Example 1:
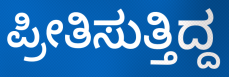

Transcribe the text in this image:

ಪ್ರೀತಿಸುತ್ತಿದ್ದ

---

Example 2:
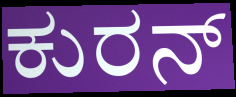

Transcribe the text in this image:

ಕುರನ್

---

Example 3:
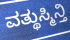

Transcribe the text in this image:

ವತ್ಥುಸ್ಮಿನ್ತಿ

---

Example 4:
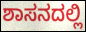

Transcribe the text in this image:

ಶಾಸನದಲ್ಲಿ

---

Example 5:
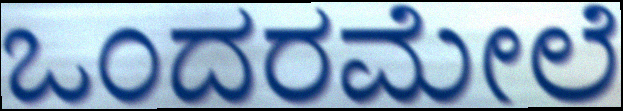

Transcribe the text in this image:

ಒಂದರಮೇಲೆ